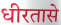
धीरतासे